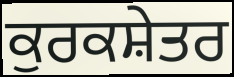
ਕੁਰਕਸ਼ੇਤਰ